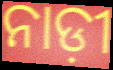
ନାଡ଼ୀ